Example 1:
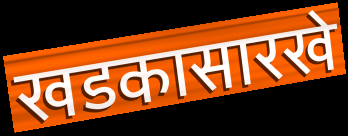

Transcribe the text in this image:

खडकासारखे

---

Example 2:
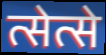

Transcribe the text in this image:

त्सेत्से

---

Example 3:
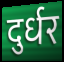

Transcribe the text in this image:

दुर्धर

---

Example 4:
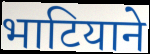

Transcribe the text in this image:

भाटियाने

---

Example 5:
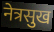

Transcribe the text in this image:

नेत्रसुख